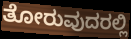
ತೋರುವುದರಲ್ಲಿ